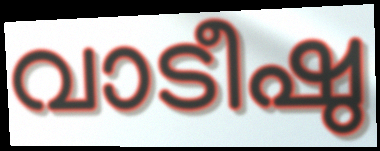
വാടീഷു